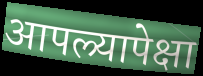
आपल्यापेक्षा